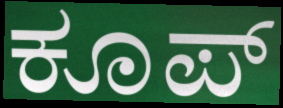
ಕೂಪ್